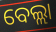
ବେଲ୍ଲା